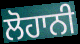
ਲੋਹਾਨੀ